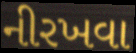
નીરખવા